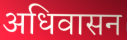
अधिवासन